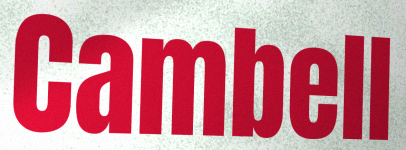
Cambell